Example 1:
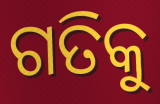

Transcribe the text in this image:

ଗତିକୁ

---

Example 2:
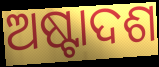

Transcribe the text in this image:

ଅଷ୍ଟାଦଶ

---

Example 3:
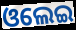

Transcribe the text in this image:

ଓଲେଇ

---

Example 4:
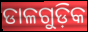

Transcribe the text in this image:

ଡାଳଗୁଡ଼ିକ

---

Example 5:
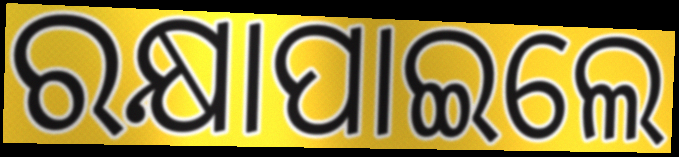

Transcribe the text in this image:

ରକ୍ଷାପାଇଲେ